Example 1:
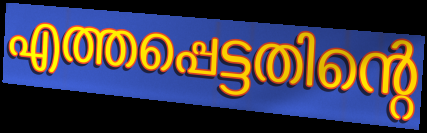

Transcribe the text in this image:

എത്തപ്പെട്ടതിന്റെ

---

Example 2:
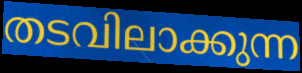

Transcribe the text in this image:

തടവിലാക്കുന്ന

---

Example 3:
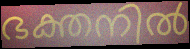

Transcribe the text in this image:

ഭക്തനിൽ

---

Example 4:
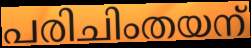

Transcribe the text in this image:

പരിചിംതയന്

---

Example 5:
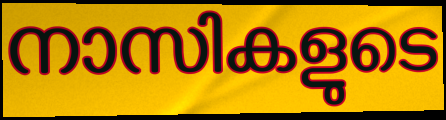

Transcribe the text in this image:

നാസികളുടെ